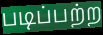
படிப்பற்ற